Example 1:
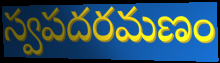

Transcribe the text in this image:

స్వపదరమణం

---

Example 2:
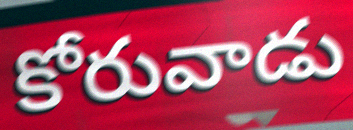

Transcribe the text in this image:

కోరువాడు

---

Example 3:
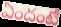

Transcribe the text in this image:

ఏందంటే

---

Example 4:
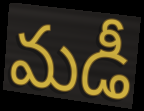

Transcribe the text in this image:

మడీ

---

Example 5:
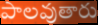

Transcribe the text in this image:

పాలవుతారు